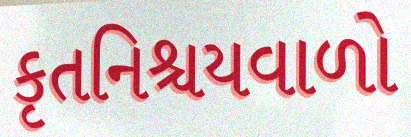
કૃતનિશ્ચયવાળો